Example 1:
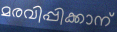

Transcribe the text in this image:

മരവിപ്പിക്കാന്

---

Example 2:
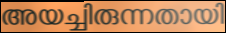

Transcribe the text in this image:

അയച്ചിരുന്നതായി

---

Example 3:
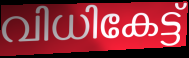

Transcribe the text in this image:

വിധികേട്ട്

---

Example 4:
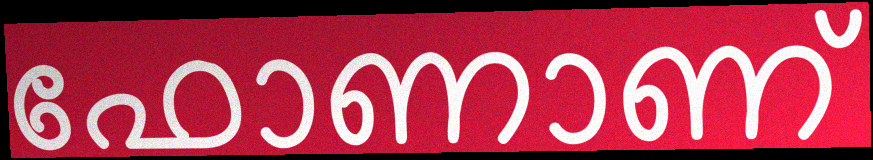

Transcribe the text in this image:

ഫോണാണ്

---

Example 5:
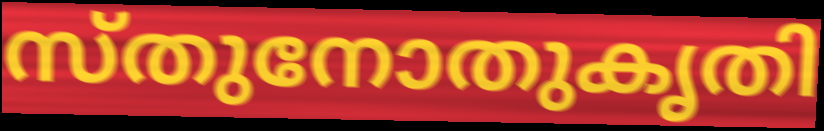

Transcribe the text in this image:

സ്തുനോതുകൃതി